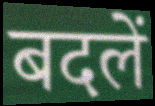
बदलें